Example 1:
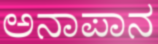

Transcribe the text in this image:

ಅನಾಪಾನ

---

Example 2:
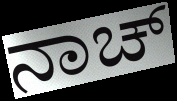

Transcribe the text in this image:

ನಾಚ್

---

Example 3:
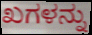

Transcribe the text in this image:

ಖಗಳನ್ನು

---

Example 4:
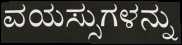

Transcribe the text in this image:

ವಯಸ್ಸುಗಳನ್ನು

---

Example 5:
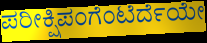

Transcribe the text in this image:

ಪರೀಕ್ಷಿಪಂಗೆಂಟೆರ್ದೆಯೇ